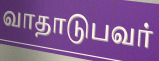
வாதாடுபவர்